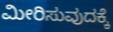
ಮೀರಿಸುವುದಕ್ಕೆ